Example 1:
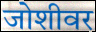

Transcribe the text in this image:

जोशीवर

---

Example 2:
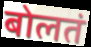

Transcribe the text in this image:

बोलतं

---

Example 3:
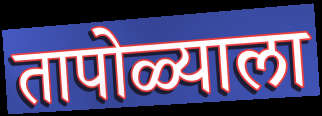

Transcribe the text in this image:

तापोळ्याला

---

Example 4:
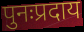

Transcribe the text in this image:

पुनःप्रदाय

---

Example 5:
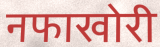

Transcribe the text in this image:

नफाखोरी